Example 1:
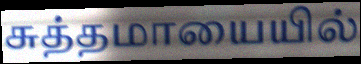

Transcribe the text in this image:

சுத்தமாயையில்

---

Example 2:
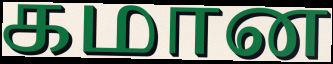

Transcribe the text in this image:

கமான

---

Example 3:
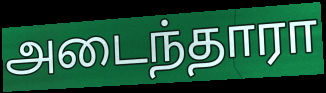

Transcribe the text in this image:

அடைந்தாரா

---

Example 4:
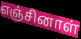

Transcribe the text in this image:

எஞ்சினாள்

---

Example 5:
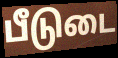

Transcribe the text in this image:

பீடுடை